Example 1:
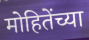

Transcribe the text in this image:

मोहितेंच्या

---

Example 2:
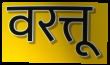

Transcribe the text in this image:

वरत्तू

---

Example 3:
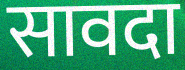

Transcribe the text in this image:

सावदा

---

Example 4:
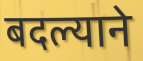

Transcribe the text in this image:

बदल्याने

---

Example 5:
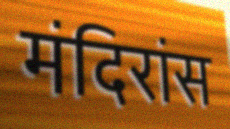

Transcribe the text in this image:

मंदिरांस